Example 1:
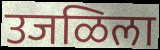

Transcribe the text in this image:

उजळिला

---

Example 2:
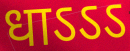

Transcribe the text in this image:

धाऽऽऽ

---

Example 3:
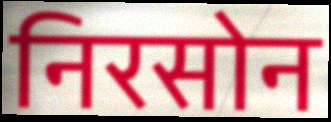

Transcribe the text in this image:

निरसोन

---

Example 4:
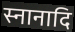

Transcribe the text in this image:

स्नानादि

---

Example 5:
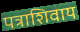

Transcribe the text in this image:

पत्राशिवाय